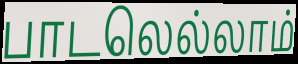
பாடலெல்லாம்